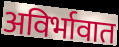
अविर्भावात